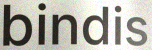
bindis